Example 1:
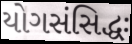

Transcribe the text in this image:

યોગસંસિદ્ધઃ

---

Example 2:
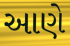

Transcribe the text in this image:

આણે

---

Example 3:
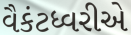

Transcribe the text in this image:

વૈકંટધ્વરીએ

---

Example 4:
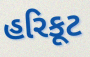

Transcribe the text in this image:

હરિકૂટ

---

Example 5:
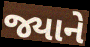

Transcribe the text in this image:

જ્યાને